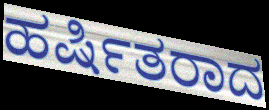
ಹರ್ಷಿತರಾದ